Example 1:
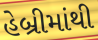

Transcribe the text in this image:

હેબ્રીમાંથી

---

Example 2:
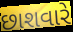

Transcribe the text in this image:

છાશવારે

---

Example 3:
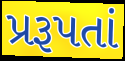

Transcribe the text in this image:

પ્રરૂપતાં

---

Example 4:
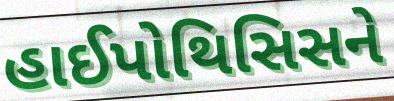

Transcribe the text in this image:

હાઈપોથિસિસને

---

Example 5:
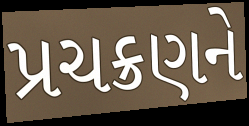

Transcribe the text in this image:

પ્રચક્રણને